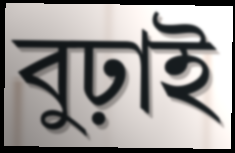
বুঢ়াই